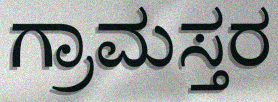
ಗ್ರಾಮಸ್ತರ